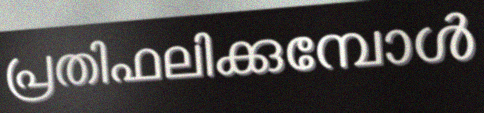
പ്രതിഫലിക്കുമ്പോൾ